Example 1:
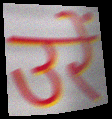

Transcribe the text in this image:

उरें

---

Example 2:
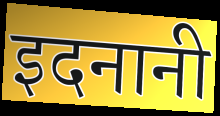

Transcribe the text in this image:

इदनानी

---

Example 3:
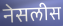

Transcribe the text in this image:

नेसलीस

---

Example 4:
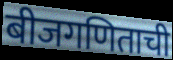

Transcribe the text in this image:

बीजगणिताची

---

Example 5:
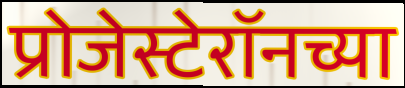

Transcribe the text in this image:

प्रोजेस्टेरॉनच्या